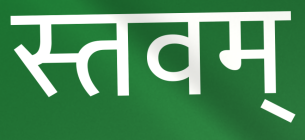
स्तवम्